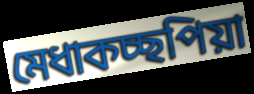
মেধাকচ্ছপিয়া